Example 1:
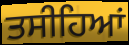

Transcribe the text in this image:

ਤਸੀਹਿਆਂ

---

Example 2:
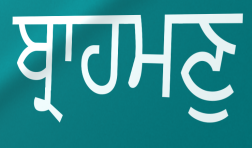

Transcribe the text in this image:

ਬ੍ਰਾਹਮਣੁ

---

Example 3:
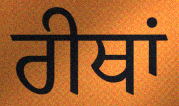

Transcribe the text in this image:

ਰੀਥਾਂ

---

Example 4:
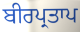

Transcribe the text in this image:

ਬੀਰਪ੍ਰਤਾਪ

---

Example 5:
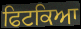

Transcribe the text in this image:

ਫਿਟਕਿਆ